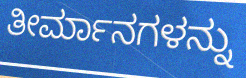
ತೀರ್ಮಾನಗಳನ್ನು